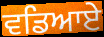
ਵਡਿਆਏ